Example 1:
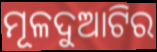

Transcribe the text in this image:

ମୂଳଦୁଆଟିର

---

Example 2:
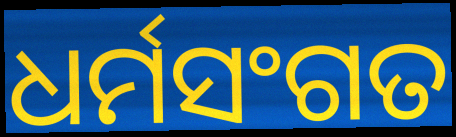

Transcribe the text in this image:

ଧର୍ମସଂଗତ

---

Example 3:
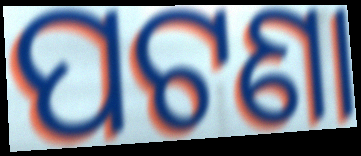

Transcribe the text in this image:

ପଟଣା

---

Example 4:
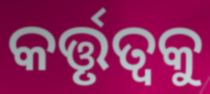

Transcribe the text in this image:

କର୍ତ୍ତୃତ୍ୱକୁ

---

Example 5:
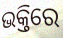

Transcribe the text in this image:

ଭକ୍ତିରେ